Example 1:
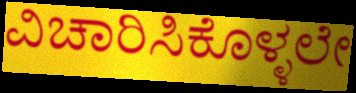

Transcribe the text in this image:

ವಿಚಾರಿಸಿಕೊಳ್ಳಲೇ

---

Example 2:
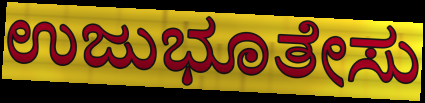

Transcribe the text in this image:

ಉಜುಭೂತೇಸು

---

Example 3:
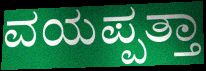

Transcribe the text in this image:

ವಯಪ್ಪತ್ತಾ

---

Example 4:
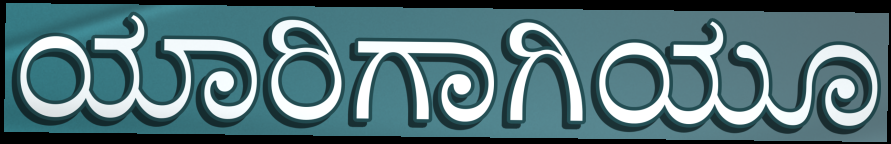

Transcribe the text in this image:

ಯಾರಿಗಾಗಿಯೂ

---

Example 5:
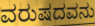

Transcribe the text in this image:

ವರುಷದವನು